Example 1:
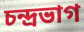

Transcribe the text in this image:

চন্দ্রভাগ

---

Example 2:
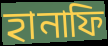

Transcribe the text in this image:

হানাফি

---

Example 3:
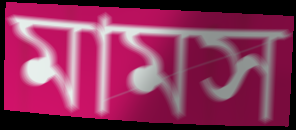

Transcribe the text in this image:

মামস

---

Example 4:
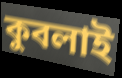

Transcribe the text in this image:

কুবলাই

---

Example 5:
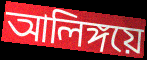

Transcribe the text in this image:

আলিঙ্গয়ে